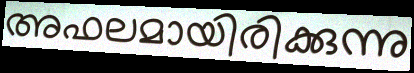
അഫലമായിരിക്കുന്നു